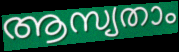
ആസ്യതാം